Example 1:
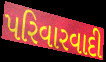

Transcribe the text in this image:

પરિવારવાદી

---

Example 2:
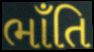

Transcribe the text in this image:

ભાઁતિ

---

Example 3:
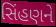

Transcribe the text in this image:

સિંહણને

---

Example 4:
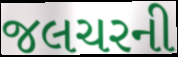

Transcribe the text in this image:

જલચરની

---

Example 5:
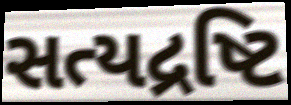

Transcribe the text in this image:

સત્યદ્રષ્ટિ